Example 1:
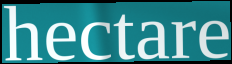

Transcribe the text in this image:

hectare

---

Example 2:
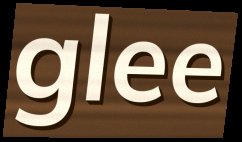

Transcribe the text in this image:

glee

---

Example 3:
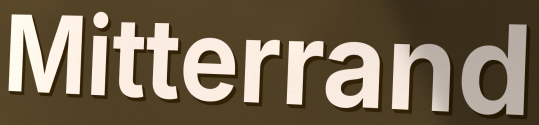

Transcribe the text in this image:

Mitterrand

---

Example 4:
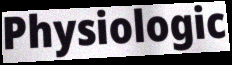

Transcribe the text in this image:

Physiologic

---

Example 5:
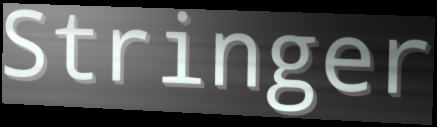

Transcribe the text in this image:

Stringer